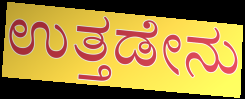
ಉತ್ತಡೇನು